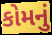
કોમનું